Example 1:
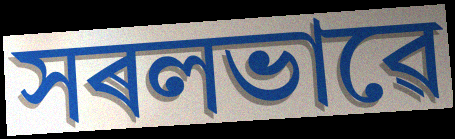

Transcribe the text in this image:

সৰলভাৱে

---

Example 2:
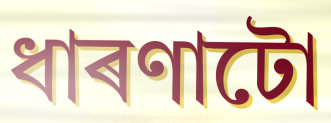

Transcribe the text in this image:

ধাৰণাটো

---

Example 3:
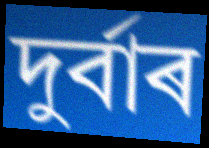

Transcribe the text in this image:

দুৰ্বাৰ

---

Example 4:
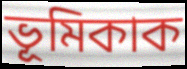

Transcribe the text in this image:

ভূমিকাক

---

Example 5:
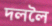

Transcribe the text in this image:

দললৈ